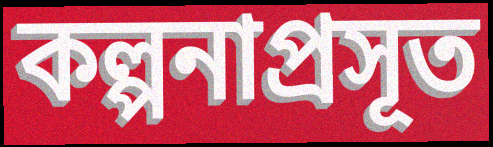
কল্পনাপ্ৰসূত